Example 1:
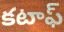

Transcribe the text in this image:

కటాఫ్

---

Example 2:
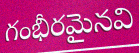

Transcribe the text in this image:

గంభీరమైనవి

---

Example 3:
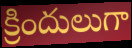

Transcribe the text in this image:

క్రిందులుగా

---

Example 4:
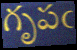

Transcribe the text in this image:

గృపఁ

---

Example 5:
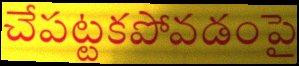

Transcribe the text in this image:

చేపట్టకపోవడంపై